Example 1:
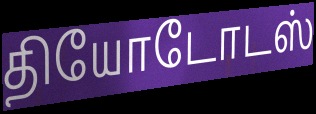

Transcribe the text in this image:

தியோடோடஸ்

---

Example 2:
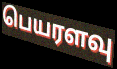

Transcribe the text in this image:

பெயரளவு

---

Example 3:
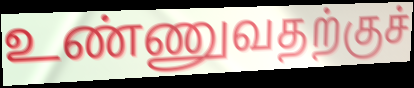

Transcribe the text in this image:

உண்ணுவதற்குச்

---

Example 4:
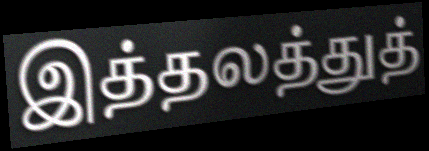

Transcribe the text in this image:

இத்தலத்துத்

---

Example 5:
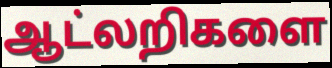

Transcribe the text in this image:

ஆட்லறிகளை